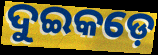
ଦୁଇକଡ଼େ